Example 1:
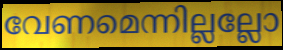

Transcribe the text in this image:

വേണമെന്നില്ലല്ലോ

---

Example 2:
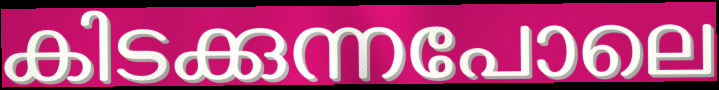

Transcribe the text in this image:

കിടക്കുന്നപോലെ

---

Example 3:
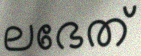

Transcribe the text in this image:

ലഭേത്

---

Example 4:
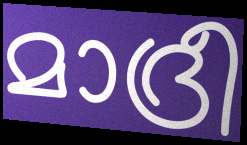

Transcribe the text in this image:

മാദ്രീ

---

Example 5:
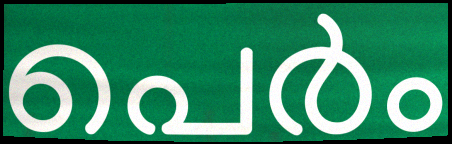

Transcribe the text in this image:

പെർം